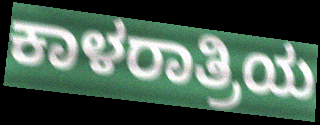
ಕಾಳರಾತ್ರಿಯ